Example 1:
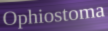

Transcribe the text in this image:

Ophiostoma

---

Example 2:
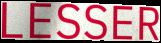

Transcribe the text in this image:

LESSER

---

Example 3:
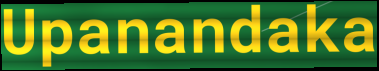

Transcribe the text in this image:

Upanandaka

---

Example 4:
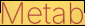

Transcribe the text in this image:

Metab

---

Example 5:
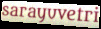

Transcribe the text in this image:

sarayuvetri